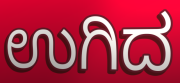
ಉಗಿದ